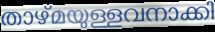
താഴ്മയുള്ളവനാക്കി